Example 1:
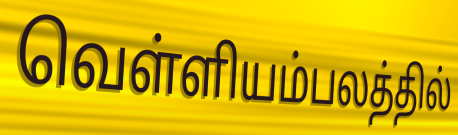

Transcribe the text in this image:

வெள்ளியம்பலத்தில்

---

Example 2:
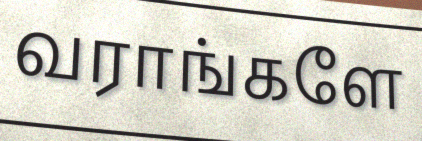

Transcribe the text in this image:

வராங்களே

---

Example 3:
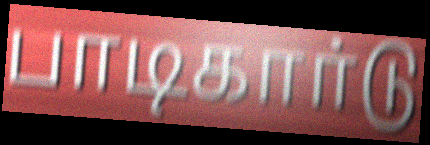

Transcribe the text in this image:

பாடிகார்டு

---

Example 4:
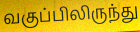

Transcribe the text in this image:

வகுப்பிலிருந்து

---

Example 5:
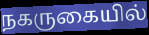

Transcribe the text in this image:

நகருகையில்